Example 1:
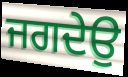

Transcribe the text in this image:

ਜਗਦੇਉ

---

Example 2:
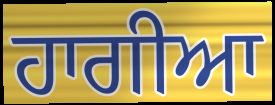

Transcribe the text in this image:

ਹਾਗੀਆ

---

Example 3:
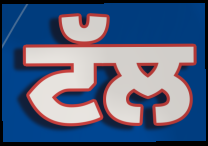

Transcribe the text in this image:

ਟੱਲ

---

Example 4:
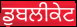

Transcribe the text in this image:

ਡੁਬਲੀਕੇਟ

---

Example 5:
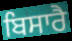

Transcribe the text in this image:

ਬਿਸਾਰੈ